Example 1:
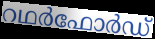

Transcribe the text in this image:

റഥർഫോർഡ്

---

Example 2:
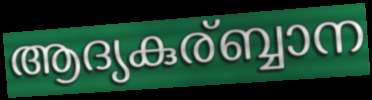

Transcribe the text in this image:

ആദ്യകുര്ബ്ബാന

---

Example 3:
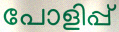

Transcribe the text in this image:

പോളിപ്പ്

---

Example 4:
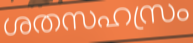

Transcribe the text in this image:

ശതസഹസ്രം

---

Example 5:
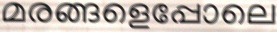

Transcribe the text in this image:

മരങ്ങളെപ്പോലെ